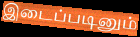
இடைப்படினும்